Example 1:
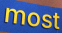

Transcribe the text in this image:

most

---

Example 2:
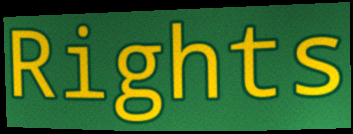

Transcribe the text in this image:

Rights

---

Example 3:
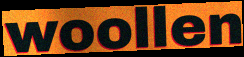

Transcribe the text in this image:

woollen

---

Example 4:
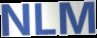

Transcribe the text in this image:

NLM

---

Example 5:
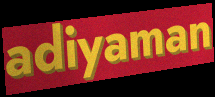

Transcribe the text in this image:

adiyaman